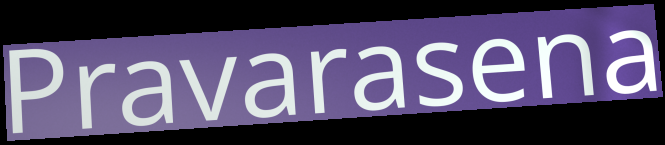
Pravarasena